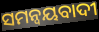
ସମନ୍ୱୟବାଦୀ